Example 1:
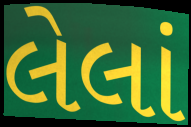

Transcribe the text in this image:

લેલાં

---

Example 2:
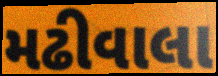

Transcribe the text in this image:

મઢીવાલા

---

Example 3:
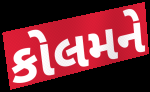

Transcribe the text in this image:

કોલમને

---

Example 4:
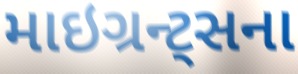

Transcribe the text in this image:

માઇગ્રન્ટ્સના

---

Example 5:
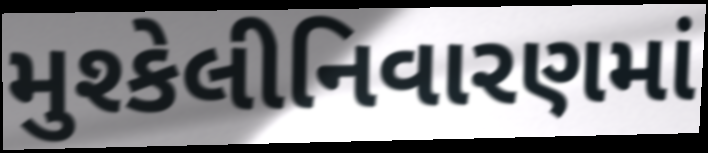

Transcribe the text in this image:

મુશ્કેલીનિવારણમાં